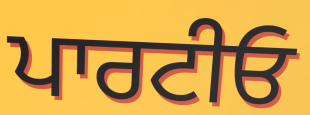
ਪਾਰਟੀਓ